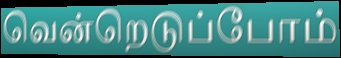
வென்றெடுப்போம்